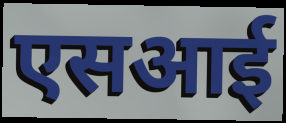
एसआई